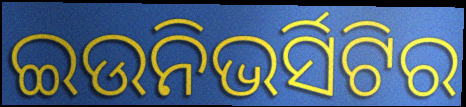
ଇଉନିଭର୍ସିଟିର